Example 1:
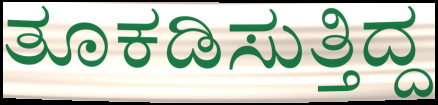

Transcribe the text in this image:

ತೂಕಡಿಸುತ್ತಿದ್ದ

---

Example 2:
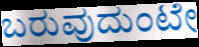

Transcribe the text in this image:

ಬರುವುದುಂಟೇ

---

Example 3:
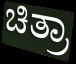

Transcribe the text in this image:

ಚಿತ್ರಾ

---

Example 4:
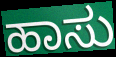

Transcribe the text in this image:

ಹಾಸು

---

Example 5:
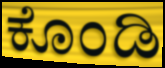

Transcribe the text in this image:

ಕೊಂಡಿ